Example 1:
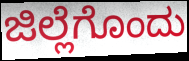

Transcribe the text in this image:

ಜಿಲ್ಲೆಗೊಂದು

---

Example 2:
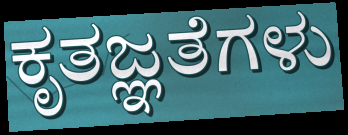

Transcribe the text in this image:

ಕೃತಜ್ಞತೆಗಳು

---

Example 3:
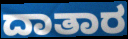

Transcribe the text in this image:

ದಾತಾರ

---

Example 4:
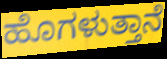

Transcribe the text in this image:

ಹೊಗಳುತ್ತಾನೆ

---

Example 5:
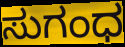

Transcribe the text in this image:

ಸುಗಂಧ